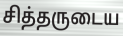
சித்தருடைய